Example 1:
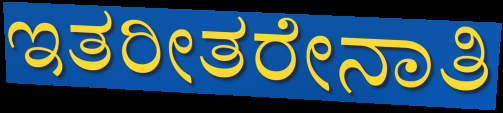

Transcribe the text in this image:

ಇತರೀತರೇನಾತಿ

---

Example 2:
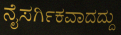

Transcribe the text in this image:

ನೈಸರ್ಗಿಕವಾದದ್ದು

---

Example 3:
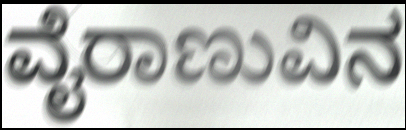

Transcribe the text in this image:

ವೈರಾಣುವಿನ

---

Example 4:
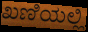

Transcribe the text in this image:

ಖಣಿಯಲ್ಲಿ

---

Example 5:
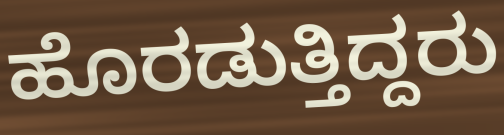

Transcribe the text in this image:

ಹೊರಡುತ್ತಿದ್ದರು